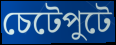
চেটেপুটে